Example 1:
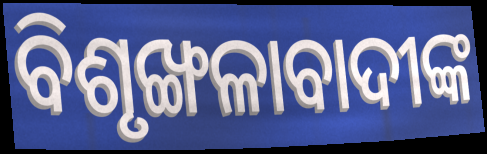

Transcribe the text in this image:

ବିଶୃଙ୍ଖଳାବାଦୀଙ୍କ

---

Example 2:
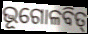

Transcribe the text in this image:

ଭୂଗୋଳବିତ୍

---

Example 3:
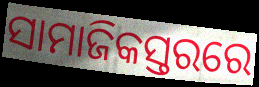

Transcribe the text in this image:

ସାମାଜିକସ୍ତରରେ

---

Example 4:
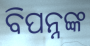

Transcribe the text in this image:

ବିପନ୍ନଙ୍କ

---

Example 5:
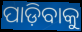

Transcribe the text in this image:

ପାଡ଼ିବାକୁ